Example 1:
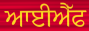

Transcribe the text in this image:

ਆਈਐੱਫ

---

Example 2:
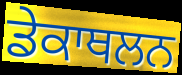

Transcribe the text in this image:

ਡੇਕਾਥਲਨ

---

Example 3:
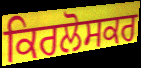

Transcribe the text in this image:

ਕਿਰਲੋਸਕਰ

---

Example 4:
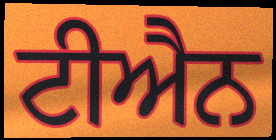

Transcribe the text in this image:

ਟੀਐਨ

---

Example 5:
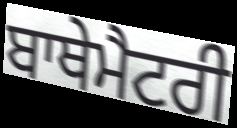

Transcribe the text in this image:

ਬਾਥੇਮੈਟਰੀ